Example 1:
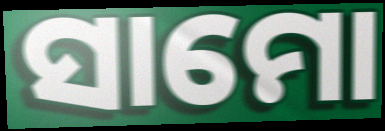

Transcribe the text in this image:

ସାମୋ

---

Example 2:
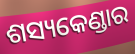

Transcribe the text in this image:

ଶସ୍ୟକେଣ୍ଡାର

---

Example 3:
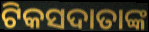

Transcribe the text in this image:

ଟିକସଦାତାଙ୍କ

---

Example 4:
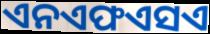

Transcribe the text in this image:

ଏନଏଫଏସଏ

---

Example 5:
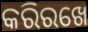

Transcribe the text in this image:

କରିରଖେ